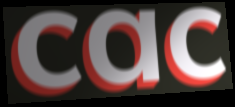
cac